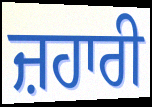
ਜ਼ਹਾਰੀ